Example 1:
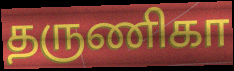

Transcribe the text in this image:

தருணிகா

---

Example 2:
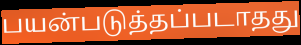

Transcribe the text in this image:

பயன்படுத்தப்படாதது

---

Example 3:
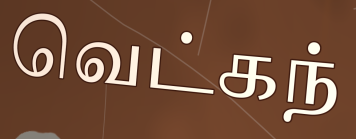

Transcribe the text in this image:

வெட்கந்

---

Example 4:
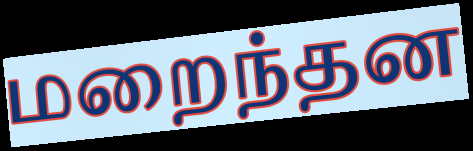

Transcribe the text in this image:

மறைந்தன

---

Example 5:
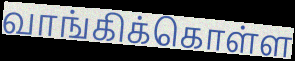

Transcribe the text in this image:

வாங்கிக்கொள்ள